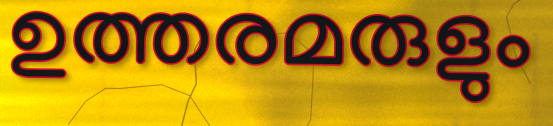
ഉത്തരമരുളും